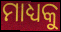
ମାଧ୍ୟକୁ